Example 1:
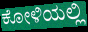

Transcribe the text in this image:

ಕೋಳಿಯಲ್ಲಿ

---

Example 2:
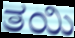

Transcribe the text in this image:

ತಯಿ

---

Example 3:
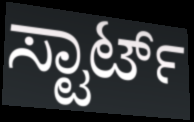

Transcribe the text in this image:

ಸ್ಟಾರ್ಟ್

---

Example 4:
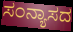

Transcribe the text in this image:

ಸಂನ್ಯಾಸದ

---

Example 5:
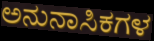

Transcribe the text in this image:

ಅನುನಾಸಿಕಗಳ